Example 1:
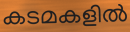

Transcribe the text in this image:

കടമകളിൽ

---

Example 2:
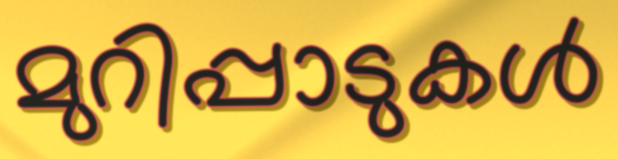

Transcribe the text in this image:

മുറിപ്പാടുകൾ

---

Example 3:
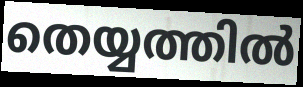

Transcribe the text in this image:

തെയ്യത്തിൽ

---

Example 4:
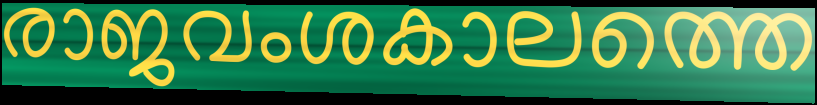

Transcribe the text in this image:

രാജവംശകാലത്തെ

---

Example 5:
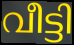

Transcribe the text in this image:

വീട്ടി